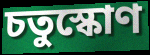
চতুস্কোণ